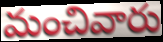
మంచివారు